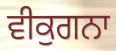
ਵੀਕੁਗਨਾ